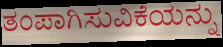
ತಂಪಾಗಿಸುವಿಕೆಯನ್ನು